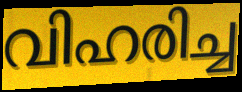
വിഹരിച്ച